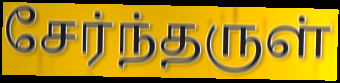
சேர்ந்தருள்